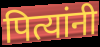
पित्यांनी